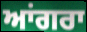
ਆਂਗਰਾ